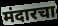
मंदारचा